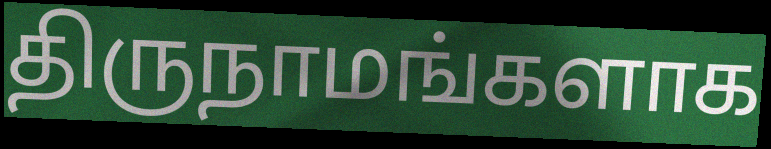
திருநாமங்களாக